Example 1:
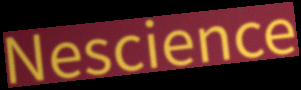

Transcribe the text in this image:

Nescience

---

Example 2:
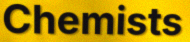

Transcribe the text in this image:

Chemists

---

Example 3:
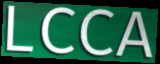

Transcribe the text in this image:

LCCA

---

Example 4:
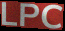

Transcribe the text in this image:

LPC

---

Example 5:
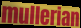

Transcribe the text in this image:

mullerian